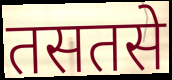
तसतसे